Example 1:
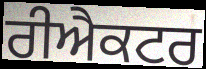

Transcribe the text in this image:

ਰੀਐਕਟਰ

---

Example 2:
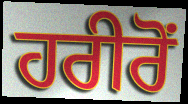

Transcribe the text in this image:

ਹਰੀਰੋਂ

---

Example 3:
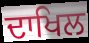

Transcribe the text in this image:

ਦਾਖਿਲ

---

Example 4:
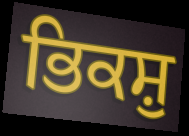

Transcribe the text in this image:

ਭਿਕਸ਼ੁ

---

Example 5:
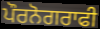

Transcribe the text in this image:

ਪੌਰਨੋਗਰਾਫੀ